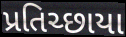
પ્રતિચ્છાયા